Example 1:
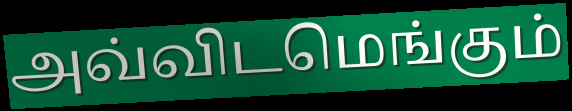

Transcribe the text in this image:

அவ்விடமெங்கும்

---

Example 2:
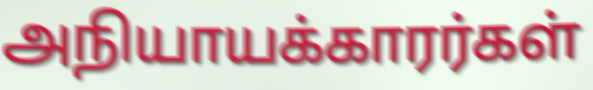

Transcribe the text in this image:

அநியாயக்காரர்கள்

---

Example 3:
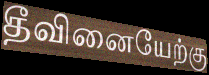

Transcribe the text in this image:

தீவினையேற்கு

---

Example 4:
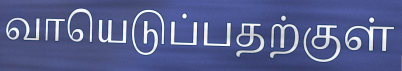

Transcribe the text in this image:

வாயெடுப்பதற்குள்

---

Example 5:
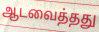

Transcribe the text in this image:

ஆடவைத்தது